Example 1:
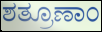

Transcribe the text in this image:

ಶತ್ರೂಣಾಂ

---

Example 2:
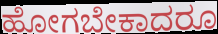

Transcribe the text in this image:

ಹೋಗಬೇಕಾದರೂ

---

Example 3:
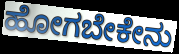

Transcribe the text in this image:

ಹೋಗಬೇಕೇನು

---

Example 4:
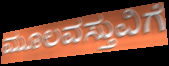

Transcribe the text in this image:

ಮೂಲವಸ್ತುವಿಗೆ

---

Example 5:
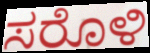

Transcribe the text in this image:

ಸರೊಳಿ